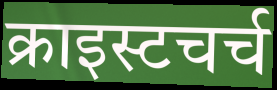
क्राइस्टचर्च